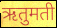
ऋतुमती